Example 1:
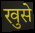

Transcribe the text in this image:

खुसे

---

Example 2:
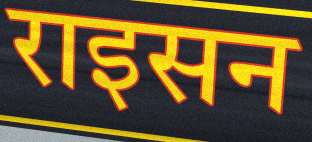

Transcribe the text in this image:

राइसन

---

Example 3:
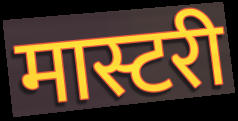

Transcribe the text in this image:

मास्टरी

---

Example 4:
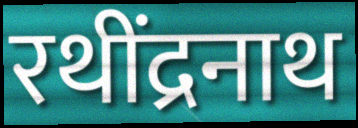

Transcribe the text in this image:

रथींद्रनाथ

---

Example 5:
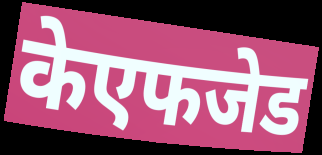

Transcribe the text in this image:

केएफजेड